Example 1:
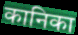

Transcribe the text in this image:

कानिका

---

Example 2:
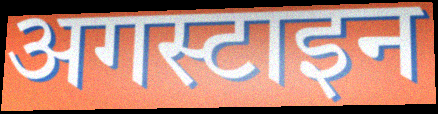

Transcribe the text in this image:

अगस्टाइन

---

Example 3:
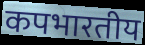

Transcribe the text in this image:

कपभारतीय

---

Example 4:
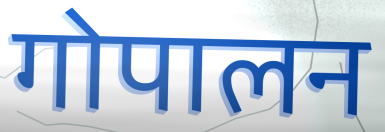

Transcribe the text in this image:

गोपालन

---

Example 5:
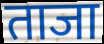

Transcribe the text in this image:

ताजा